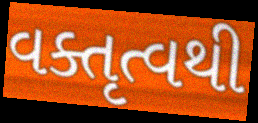
વક્તૃત્વથી